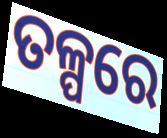
ତଳ୍ପରେ